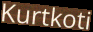
Kurtkoti